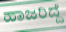
ಹಾಜರಿದ್ದೆ